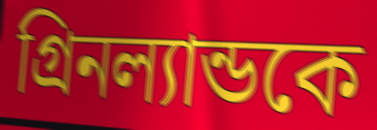
গ্রিনল্যান্ডকে